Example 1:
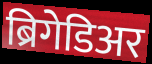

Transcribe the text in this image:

ब्रिगेडिअर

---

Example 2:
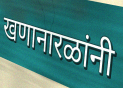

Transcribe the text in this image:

खणानारळांनी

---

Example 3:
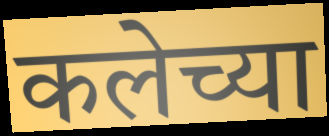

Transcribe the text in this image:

कलेच्या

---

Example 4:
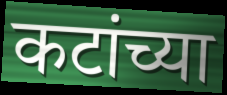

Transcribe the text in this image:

कटांच्या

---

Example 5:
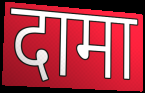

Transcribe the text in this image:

दामा